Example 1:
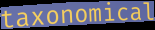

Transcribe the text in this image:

taxonomical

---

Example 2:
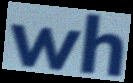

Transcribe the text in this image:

wh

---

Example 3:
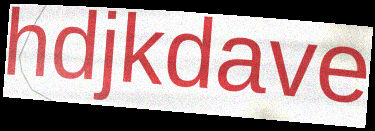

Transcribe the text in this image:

hdjkdave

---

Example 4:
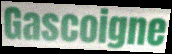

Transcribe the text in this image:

Gascoigne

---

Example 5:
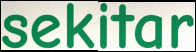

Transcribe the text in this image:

sekitar